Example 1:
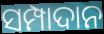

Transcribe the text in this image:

ସମ୍ପାଦାନ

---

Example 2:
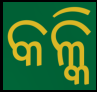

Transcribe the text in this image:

କଳ୍କି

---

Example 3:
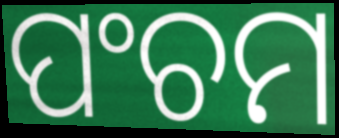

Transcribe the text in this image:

ପଂଚମ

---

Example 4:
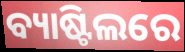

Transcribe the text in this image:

ବ୍ୟାଷ୍ଟିଲରେ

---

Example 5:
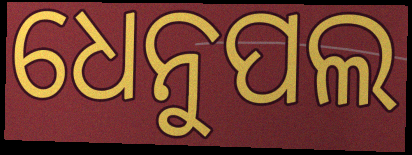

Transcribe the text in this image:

ଧେନୁପଲ